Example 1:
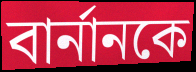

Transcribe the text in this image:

বাৰ্নানকে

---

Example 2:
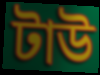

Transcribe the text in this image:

টাউ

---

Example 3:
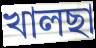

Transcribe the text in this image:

খালছা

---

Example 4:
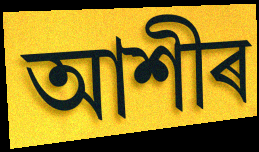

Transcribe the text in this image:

আশীৰ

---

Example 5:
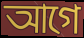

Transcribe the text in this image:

আগে